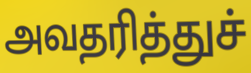
அவதரித்துச்